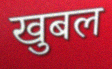
खुबल